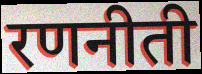
रणनीती